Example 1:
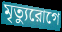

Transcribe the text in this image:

মৃত্যুরোগে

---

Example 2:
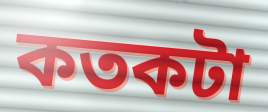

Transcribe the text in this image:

কতকটা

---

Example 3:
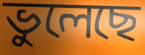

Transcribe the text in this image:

ভুলেছে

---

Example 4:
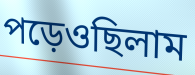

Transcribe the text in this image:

পড়েওছিলাম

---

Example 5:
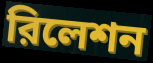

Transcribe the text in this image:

রিলেশন